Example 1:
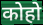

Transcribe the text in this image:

कोहो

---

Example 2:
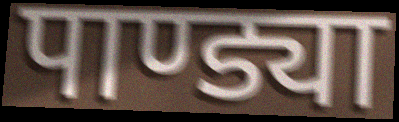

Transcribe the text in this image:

पाण्ड्या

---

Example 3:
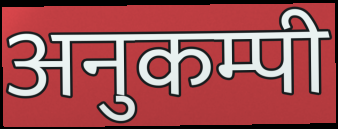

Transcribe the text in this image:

अनुकम्पी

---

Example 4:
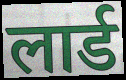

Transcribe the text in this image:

लार्ड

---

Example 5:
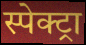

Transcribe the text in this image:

स्पेक्ट्रा